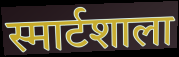
स्मार्टशाला